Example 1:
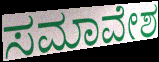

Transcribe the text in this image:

ಸಮಾವೇಶ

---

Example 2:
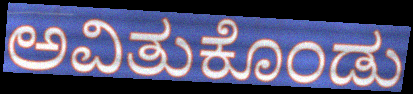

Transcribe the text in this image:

ಅವಿತುಕೊಂಡು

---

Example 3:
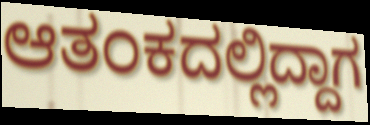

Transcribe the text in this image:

ಆತಂಕದಲ್ಲಿದ್ದಾಗ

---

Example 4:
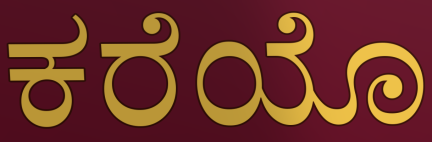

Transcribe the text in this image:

ಕರೆಯೊ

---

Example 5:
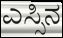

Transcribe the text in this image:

ಎಸ್ಸಿನ